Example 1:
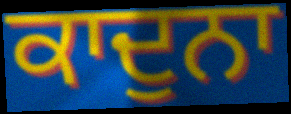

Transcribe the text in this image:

ਕਾਦੁਨਾ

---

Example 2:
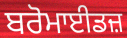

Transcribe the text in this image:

ਬਰੋਮਾਈਡਜ਼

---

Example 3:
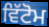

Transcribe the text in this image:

ਵਿੱਟੋਮ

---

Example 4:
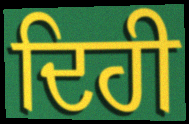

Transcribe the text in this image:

ਦਿਹੀ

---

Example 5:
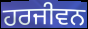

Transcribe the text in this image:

ਹਰਜੀਵਨ